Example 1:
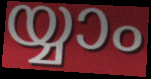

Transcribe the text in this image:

യ്യാം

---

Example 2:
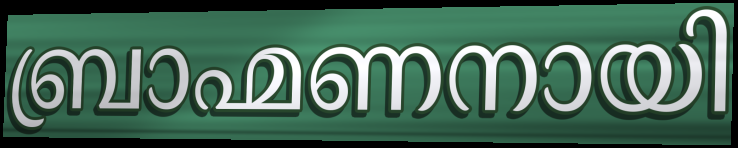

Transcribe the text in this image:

ബ്രാഹ്മണനായി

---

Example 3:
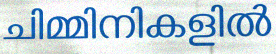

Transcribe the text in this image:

ചിമ്മിനികളിൽ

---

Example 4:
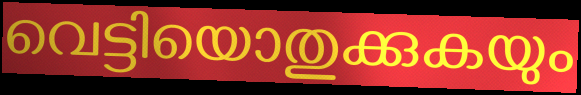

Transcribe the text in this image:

വെട്ടിയൊതുക്കുകയും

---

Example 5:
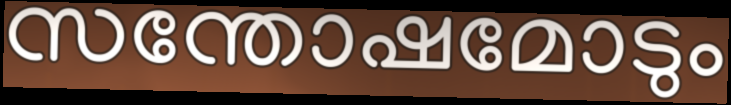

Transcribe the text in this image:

സന്തോഷമോടും